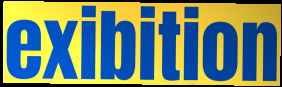
exibition